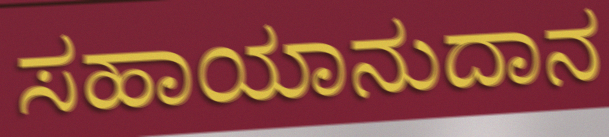
ಸಹಾಯಾನುದಾನ